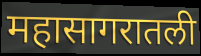
महासागरातली